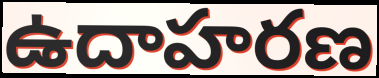
ఉదాహరణ